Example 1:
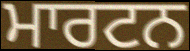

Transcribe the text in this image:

ਮਾਰਟਨ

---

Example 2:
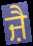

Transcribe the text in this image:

ਜ਼ੈ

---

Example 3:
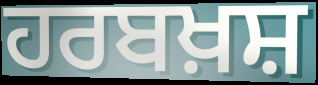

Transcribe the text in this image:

ਹਰਬਖ਼ਸ਼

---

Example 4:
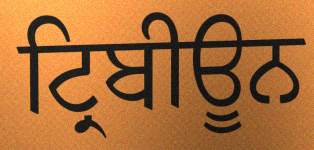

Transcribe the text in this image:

ਟ੍ਰਿਬੀਊਨ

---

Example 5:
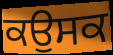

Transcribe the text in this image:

ਕਉਸਕ